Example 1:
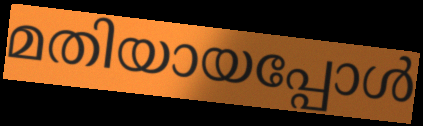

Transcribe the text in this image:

മതിയായപ്പോൾ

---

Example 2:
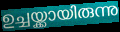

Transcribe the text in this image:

ഉച്ചയ്ക്കായിരുന്നു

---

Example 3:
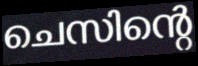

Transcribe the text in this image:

ചെസിന്റെ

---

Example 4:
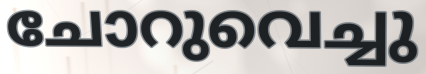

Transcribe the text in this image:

ചോറുവെച്ചു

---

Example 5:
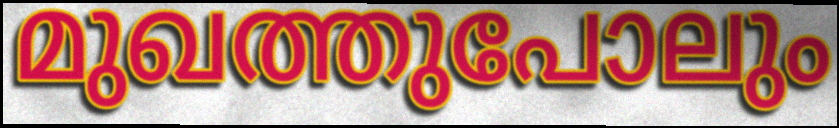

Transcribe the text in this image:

മുഖത്തുപോലും